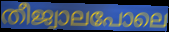
തീജ്വാലപോലെ